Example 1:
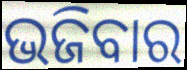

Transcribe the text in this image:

ଭଜିବାର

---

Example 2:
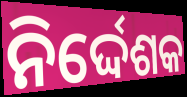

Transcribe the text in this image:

ନିର୍ଦ୍ଦେଶକ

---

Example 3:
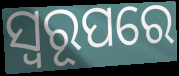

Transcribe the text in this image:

ସ୍ଵରୂପରେ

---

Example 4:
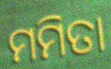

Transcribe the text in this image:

ମମିତା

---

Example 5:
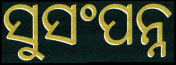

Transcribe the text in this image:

ସୁସଂପନ୍ନ